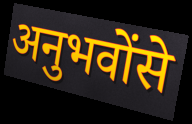
अनुभवोंसे